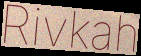
Rivkah